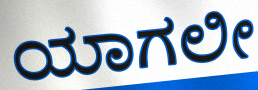
ಯಾಗಲೀ